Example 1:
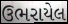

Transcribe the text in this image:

ઉભરાયેલ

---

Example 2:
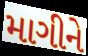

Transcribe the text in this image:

માગીને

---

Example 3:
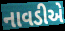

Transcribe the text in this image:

નાવડીએ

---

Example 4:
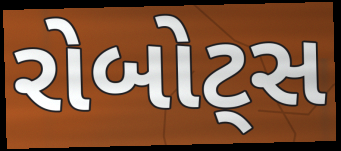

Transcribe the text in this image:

રોબોટ્સ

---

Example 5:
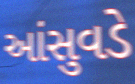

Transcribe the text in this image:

આંસુવડે